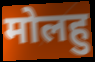
मोलहु